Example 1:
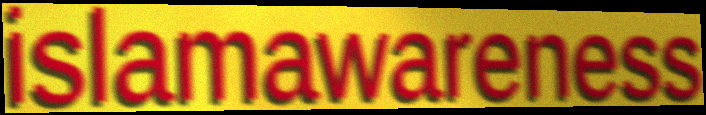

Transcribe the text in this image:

islamawareness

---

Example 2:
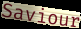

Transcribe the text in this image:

Saviour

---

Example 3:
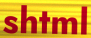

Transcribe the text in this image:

shtml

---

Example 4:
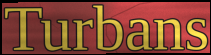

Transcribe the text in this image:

Turbans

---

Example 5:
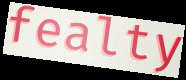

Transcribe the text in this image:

fealty